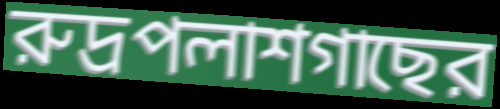
রুদ্রপলাশগাছের